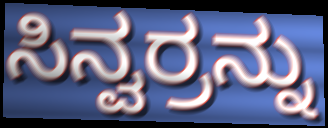
ಸಿನ್ವರ್ರನ್ನು